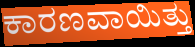
ಕಾರಣವಾಯಿತ್ತು